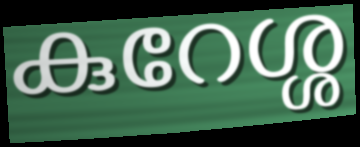
കുറേശ്ശ